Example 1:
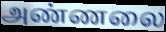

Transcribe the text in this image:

அண்ணலை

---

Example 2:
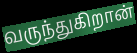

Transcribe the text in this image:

வருந்துகிறான்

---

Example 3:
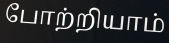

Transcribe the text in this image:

போற்றியாம்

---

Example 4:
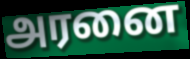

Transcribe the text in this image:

அரனை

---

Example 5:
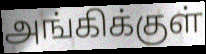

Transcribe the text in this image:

அங்கிக்குள்